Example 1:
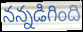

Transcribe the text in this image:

నన్నడిగింది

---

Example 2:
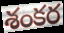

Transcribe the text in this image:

శంకర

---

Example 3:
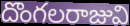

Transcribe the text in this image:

దొంగలరాజువి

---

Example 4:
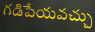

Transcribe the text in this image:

గడిపేయవచ్చు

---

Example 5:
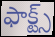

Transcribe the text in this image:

ఫాక్ట్స్